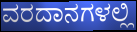
ವರದಾನಗಳಲ್ಲಿ